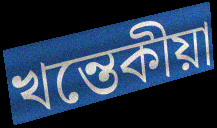
খন্তেকীয়া